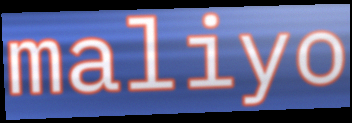
maliyo